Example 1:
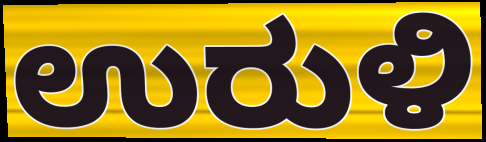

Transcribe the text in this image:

ಉರುಳಿ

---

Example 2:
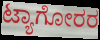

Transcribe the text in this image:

ಟ್ಯಾಗೋರರ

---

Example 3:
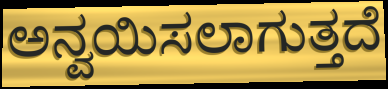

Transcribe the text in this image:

ಅನ್ವಯಿಸಲಾಗುತ್ತದೆ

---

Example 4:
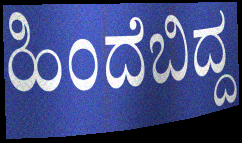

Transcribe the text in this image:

ಹಿಂದೆಬಿದ್ದ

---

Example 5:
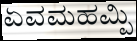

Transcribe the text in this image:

ಏವಮಹಮ್ಪಿ